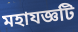
মহাযজ্ঞটি